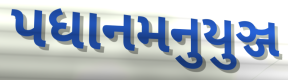
પધાનમનુયુઞ્જ